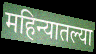
महिन्यातल्या